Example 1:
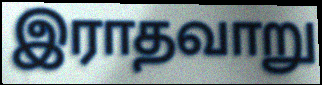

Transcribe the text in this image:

இராதவாறு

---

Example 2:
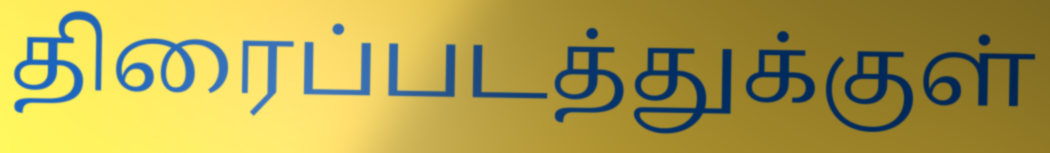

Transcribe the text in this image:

திரைப்படத்துக்குள்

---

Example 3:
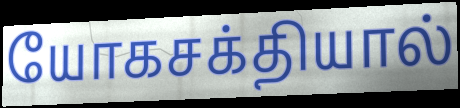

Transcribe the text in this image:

யோகசக்தியால்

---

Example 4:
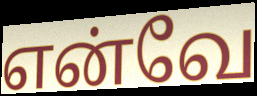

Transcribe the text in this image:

என்வே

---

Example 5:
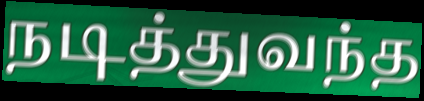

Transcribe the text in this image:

நடித்துவந்த